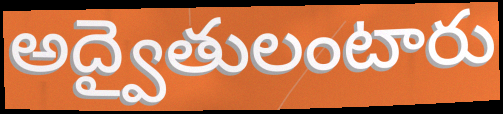
అద్వైతులంటారు